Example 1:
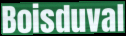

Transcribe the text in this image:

Boisduval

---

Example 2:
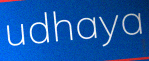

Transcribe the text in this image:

udhaya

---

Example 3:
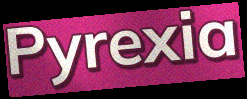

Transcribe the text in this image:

Pyrexia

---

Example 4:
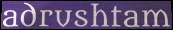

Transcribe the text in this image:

adrushtam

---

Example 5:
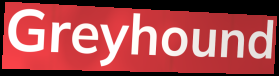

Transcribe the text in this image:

Greyhound